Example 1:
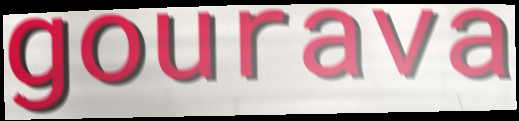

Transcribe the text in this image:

gourava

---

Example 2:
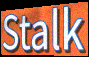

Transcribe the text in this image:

Stalk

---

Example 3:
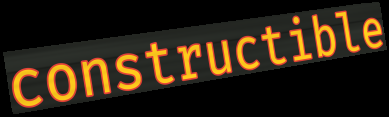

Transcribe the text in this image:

constructible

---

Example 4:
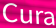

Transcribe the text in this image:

Cura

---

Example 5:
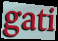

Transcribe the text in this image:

gati